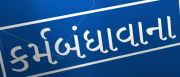
કર્મબંધાવાના